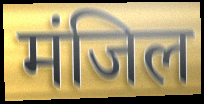
मंजिल